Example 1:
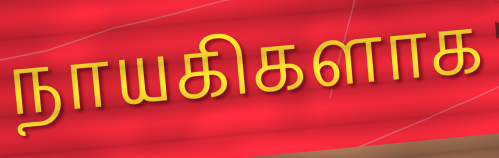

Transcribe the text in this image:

நாயகிகளாக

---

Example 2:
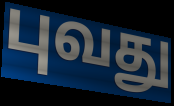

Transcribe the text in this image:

புவது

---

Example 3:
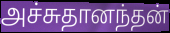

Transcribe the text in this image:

அச்சுதானந்தன்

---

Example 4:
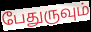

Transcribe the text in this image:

பேதுருவும்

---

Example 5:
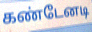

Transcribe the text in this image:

கண்டேனடி